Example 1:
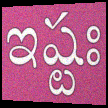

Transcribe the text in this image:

ఇష్టః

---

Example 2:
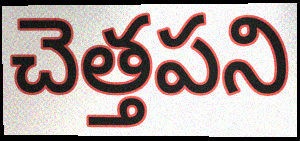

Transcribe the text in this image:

చెత్తపని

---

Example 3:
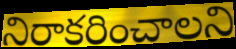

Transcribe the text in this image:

నిరాకరించాలని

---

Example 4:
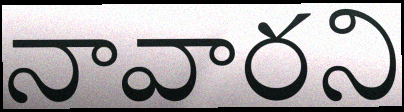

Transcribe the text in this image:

నావారని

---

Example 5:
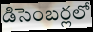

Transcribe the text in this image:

డిసెంబర్లలో